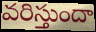
వరిస్తుందా